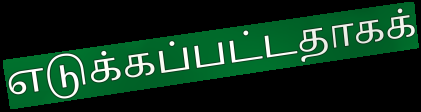
எடுக்கப்பட்டதாகக்